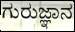
ಗುರುಜ್ಞಾನ